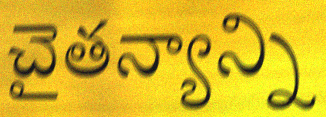
చైతన్యాన్ని